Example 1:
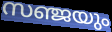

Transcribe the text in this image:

സഞ്ജയും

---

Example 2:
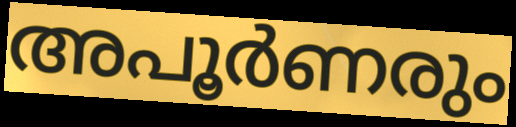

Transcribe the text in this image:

അപൂർണരും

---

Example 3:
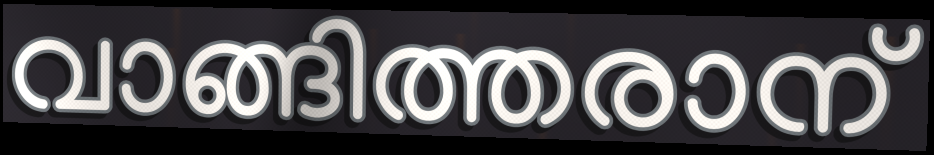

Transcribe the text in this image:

വാങ്ങിത്തരാന്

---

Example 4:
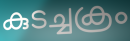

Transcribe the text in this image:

കുടച്ചക്രം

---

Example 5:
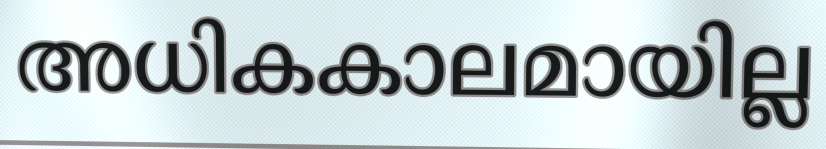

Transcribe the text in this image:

അധികകാലമായില്ല